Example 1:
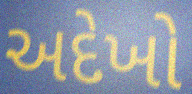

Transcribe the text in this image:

અદેખો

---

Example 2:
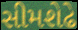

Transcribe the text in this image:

સીમશેઢે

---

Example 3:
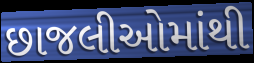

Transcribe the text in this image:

છાજલીઓમાંથી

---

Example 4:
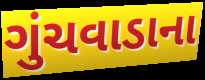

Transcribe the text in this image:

ગુંચવાડાના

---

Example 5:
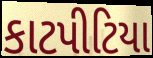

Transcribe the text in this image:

કાટપીટિયા